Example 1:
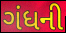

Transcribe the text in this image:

ગંધની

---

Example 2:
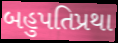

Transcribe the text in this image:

બહુપતિપ્રથા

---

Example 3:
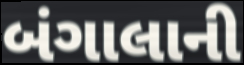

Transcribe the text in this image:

બંગાલાની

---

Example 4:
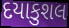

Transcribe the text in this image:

દયાકુશલ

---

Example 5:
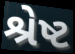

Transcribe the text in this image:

શ્રેષ્ટ